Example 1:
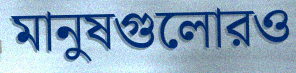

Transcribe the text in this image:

মানুষগুলোরও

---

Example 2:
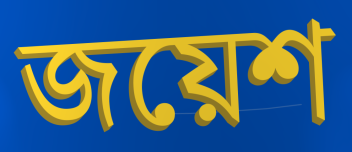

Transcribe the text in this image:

জয়েশ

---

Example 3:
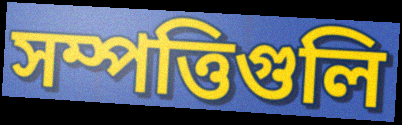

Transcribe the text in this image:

সম্পত্তিগুলি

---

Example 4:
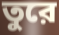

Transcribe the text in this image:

তুরে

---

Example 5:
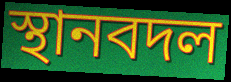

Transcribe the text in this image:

স্থানবদল